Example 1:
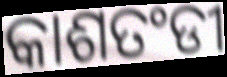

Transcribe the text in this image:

କାଶତଂଡୀ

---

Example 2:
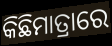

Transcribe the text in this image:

କିଛିମାତ୍ରାରେ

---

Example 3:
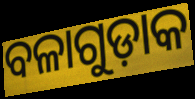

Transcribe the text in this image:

ବଳାଗୁଡ଼ାକ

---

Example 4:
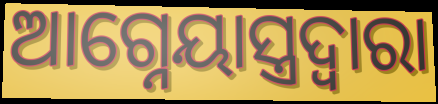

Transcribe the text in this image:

ଆଗ୍ନେୟାସ୍ତ୍ରଦ୍ୱାରା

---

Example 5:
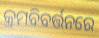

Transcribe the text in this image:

କ୍ରମବିବର୍ତ୍ତନରେ